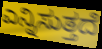
ಎನ್ನಿಸುತ್ತದೆ